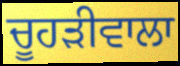
ਚੂਹੜੀਵਾਲਾ